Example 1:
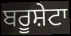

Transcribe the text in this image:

ਬਰੂਸ਼ੇਟਾ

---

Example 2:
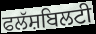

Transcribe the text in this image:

ਫਲੱਸ਼ਬਿਲਟੀ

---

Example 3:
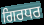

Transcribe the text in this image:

ਗਿਰਧਰ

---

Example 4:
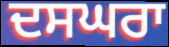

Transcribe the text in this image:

ਦਸਘਰਾ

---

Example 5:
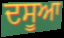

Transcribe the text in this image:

ਦਸੂਆ